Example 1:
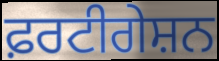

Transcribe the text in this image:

ਫ਼ਰਟੀਗੇਸ਼ਨ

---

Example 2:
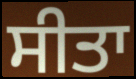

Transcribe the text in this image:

ਸੀਤਾ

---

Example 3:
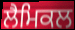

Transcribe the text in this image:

ਲੈਮਿਕਲ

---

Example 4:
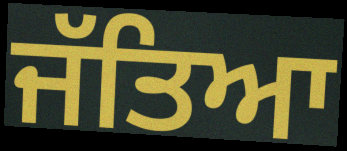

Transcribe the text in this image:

ਜੱਤਿਆ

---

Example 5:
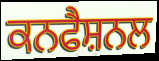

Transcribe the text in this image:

ਕਨਫੈਸ਼ਨਲ